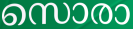
സൊരാ